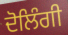
ਦੋਲਿੰਗੀ